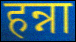
हन्ना